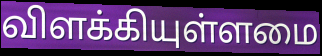
விளக்கியுள்ளமை